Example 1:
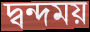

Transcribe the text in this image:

দ্বন্দময়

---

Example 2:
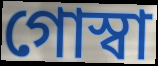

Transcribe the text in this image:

গোস্বা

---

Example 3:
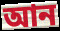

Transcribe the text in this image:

আন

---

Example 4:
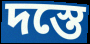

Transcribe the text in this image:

দস্তে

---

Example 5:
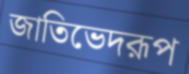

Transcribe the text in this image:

জাতিভেদরূপ